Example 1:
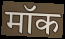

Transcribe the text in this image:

मॉक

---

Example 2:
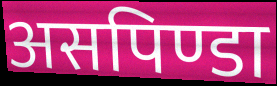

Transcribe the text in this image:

असपिण्डा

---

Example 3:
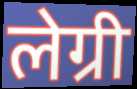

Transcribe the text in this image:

लेग्री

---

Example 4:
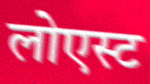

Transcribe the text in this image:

लोएस्ट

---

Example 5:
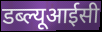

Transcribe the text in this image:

डब्ल्यूआईसी